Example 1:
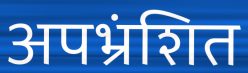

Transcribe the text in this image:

अपभ्रंशित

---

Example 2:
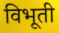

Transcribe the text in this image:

विभूती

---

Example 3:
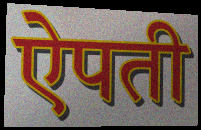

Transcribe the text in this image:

ऐपती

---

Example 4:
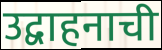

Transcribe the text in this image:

उद्वाहनाची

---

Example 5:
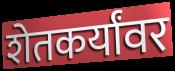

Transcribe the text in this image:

शेतकर्यांवर